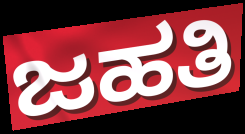
ಜಹತಿ